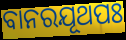
ବାନରଯୂଥପଃ